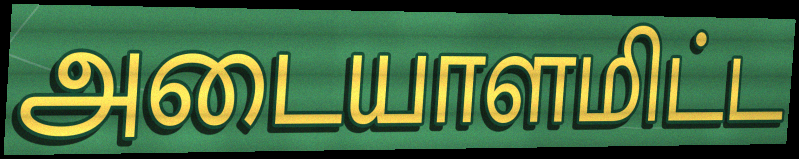
அடையாளமிட்ட